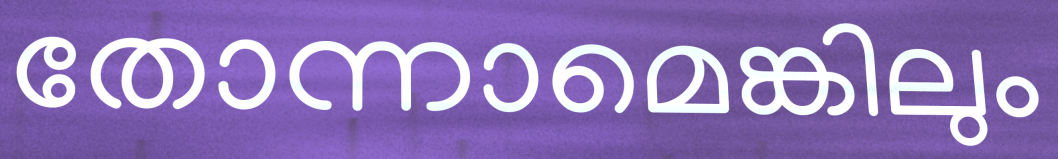
തോന്നാമെങ്കിലും